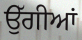
ਉੱਗੀਆਂ